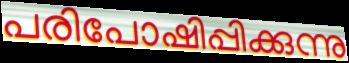
പരിപോഷിപ്പിക്കുന്നു